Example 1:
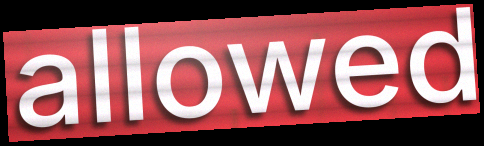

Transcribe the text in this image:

allowed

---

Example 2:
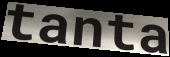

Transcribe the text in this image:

tanta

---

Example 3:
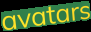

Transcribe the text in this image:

avatars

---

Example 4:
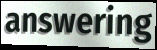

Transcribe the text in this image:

answering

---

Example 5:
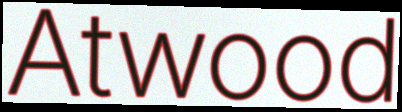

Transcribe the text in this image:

Atwood